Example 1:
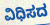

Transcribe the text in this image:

ವಿಧಿಸದ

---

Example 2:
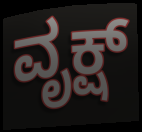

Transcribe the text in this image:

ವೃಕ್ಷ್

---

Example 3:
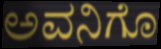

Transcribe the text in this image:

ಅವನಿಗೊ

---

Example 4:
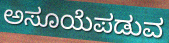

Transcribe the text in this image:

ಅಸೂಯೆಪಡುವ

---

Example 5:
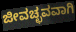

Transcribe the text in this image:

ಜೀವಚ್ಛವವಾಗಿ